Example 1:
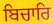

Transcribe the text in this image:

ਬਿਚਾਰਿ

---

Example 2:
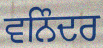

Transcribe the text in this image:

ਵਨਿੰਦਰ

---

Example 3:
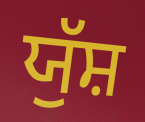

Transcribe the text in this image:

ਯੁੱਸ਼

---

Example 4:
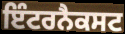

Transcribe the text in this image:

ਇੰਟਰਨੈਕਸਟ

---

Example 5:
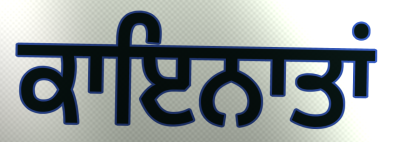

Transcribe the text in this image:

ਕਾਇਨਾਤਾਂ